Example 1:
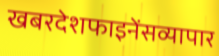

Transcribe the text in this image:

खबरदेशफाइनेंसव्यापार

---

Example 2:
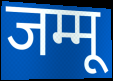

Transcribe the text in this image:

जम्मू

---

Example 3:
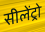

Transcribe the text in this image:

सीलेंट्रो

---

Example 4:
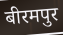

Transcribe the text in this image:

बीरमपुर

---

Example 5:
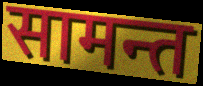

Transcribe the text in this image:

सामन्त